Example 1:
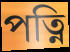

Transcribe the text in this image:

পত্নি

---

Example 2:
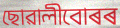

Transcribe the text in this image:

ছোৱালীবোৰৰ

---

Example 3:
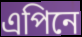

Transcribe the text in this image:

এপিনে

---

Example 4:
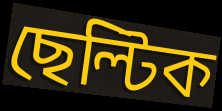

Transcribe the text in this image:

ছেল্টিক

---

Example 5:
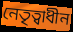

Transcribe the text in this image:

নেতৃত্বাধীন